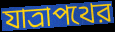
যাত্রাপথের